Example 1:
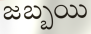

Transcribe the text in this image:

జబ్బయి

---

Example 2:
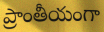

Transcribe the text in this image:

ప్రాంతీయంగా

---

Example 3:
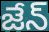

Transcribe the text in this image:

జేన్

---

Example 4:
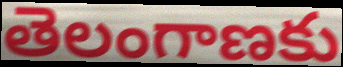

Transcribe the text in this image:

తెలంగాణకు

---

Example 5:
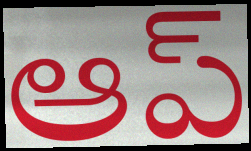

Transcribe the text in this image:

ఆప్